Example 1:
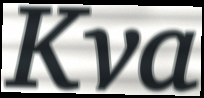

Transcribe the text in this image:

Kva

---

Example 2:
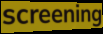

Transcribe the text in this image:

screening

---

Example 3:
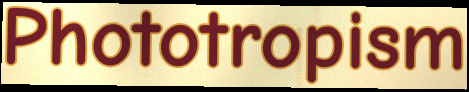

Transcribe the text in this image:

Phototropism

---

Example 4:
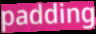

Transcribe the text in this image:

padding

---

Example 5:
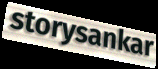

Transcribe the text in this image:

storysankar